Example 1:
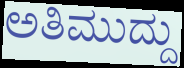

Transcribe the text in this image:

ಅತಿಮುದ್ದು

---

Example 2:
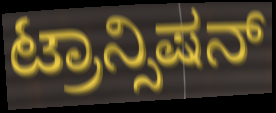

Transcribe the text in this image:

ಟ್ರಾನ್ಸಿಷನ್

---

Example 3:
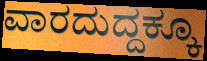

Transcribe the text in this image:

ವಾರದುದ್ದಕ್ಕೂ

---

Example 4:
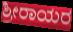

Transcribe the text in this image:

ಶ್ರೀರಾಯರ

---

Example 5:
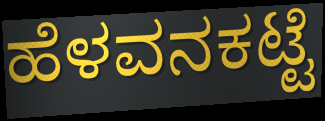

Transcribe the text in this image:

ಹೆಳವನಕಟ್ಟೆ